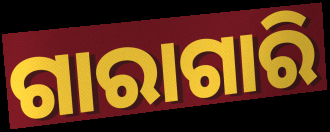
ଗାରାଗାରି